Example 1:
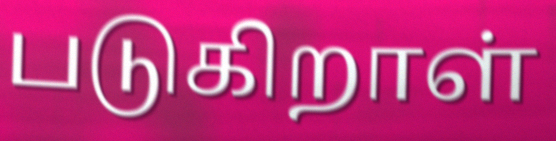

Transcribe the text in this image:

படுகிறாள்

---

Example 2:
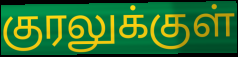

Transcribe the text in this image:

குரலுக்குள்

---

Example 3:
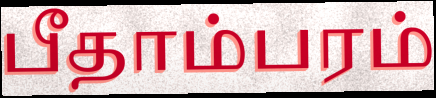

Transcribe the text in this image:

பீதாம்பரம்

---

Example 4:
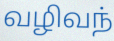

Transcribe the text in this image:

வழிவந்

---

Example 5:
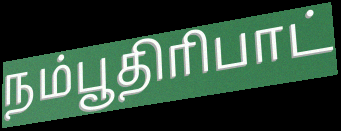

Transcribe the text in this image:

நம்பூதிரிபாட்